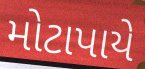
મોટાપાયે